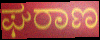
ಘರಾಣ